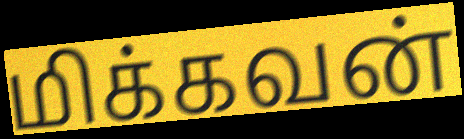
மிக்கவன்